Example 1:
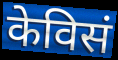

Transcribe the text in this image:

केविसं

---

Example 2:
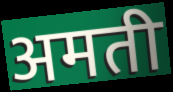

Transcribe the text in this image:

अमती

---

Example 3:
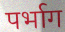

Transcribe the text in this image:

पर्भाग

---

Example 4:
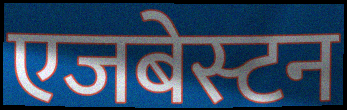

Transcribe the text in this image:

एजबेस्‍टन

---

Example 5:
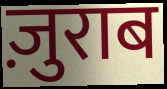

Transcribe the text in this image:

ज़ुराब